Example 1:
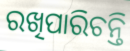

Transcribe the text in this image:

ରଖିପାରିଚନ୍ତି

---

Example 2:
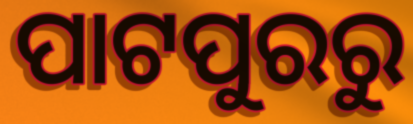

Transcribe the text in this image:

ପାଟପୁରରୁ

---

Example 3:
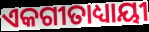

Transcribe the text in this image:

ଏକଗୀତାଧ୍ୟାୟୀ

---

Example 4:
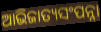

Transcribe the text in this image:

ଆଭିଜାତ୍ୟସଂପନ୍ନା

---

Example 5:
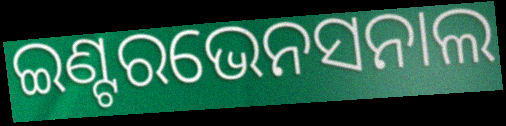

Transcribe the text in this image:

ଇଣ୍ଟରଭେନସନାଲ